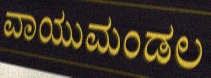
ವಾಯುಮಂಡಲ